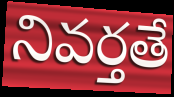
నివర్తతే